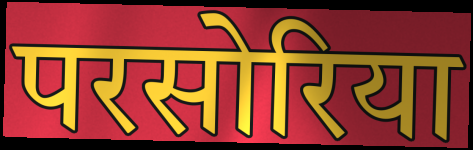
परसोरिया